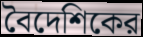
বৈদেশিকের